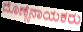
ದೊಣ್ಣೆನಾಯಕರು